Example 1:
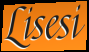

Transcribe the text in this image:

Lisesi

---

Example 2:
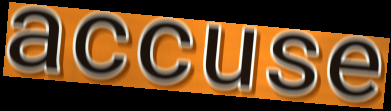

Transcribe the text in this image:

accuse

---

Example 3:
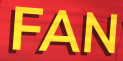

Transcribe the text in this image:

FAN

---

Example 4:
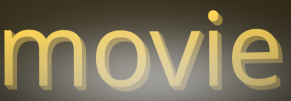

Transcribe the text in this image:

movie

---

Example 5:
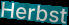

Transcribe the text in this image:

Herbst